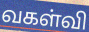
வகள்வி